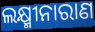
ଲକ୍ଷ୍ମୀନାରାଣ